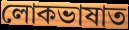
লোকভাষাত